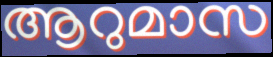
ആറുമാസ